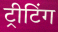
ट्रीटिंग